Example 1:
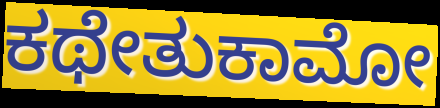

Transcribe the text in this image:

ಕಥೇತುಕಾಮೋ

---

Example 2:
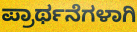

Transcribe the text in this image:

ಪ್ರಾರ್ಥನೆಗಳಾಗಿ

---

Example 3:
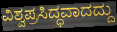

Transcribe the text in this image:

ವಿಶ್ವಪ್ರಸಿದ್ಧವಾದದ್ದು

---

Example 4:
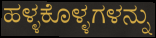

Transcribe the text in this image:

ಹಳ್ಳಕೊಳ್ಳಗಳನ್ನು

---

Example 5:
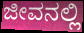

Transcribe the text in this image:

ಜೀವನಲ್ಲಿ